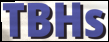
TBHs